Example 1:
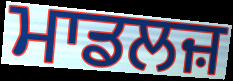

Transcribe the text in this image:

ਮਾਡਲਜ਼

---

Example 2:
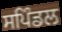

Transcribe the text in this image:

ਸਪਿੰਡਲ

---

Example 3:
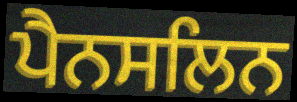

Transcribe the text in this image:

ਪੈਨਸਲਿਨ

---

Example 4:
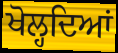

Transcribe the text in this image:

ਖੋਲ੍ਹਦਿਆਂ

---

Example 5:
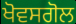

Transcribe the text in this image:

ਖੋਵਸਗੋਲ